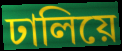
ঢালিয়ে